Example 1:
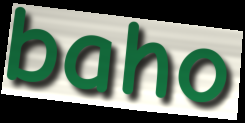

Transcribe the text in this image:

baho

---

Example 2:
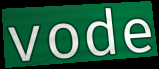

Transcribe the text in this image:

vode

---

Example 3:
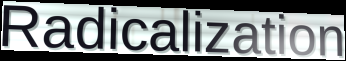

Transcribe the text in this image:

Radicalization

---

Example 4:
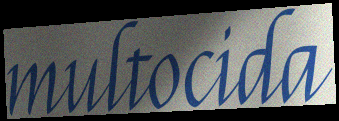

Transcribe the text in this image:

multocida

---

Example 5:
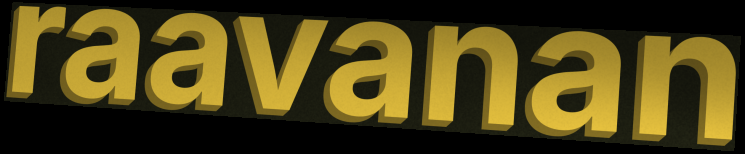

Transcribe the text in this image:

raavanan